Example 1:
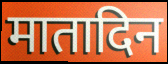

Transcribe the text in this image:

मातादिन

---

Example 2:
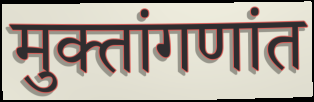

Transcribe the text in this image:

मुक्तांगणांत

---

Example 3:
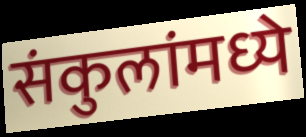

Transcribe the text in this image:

संकुलांमध्ये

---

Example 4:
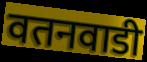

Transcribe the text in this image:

वतनवाडी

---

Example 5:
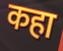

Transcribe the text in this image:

कहा